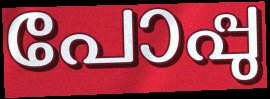
പോപ്പു